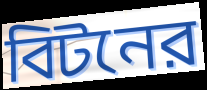
বিটনের